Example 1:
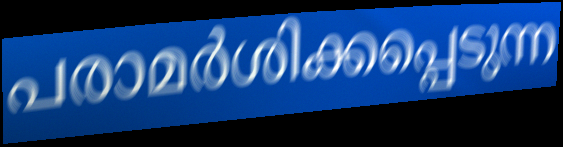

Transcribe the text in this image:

പരാമർശിക്കപ്പെടുന്ന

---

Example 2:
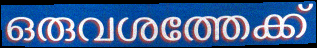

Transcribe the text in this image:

ഒരുവശത്തേക്ക്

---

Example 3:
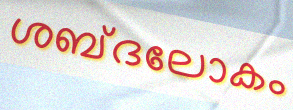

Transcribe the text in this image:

ശബ്ദലോകം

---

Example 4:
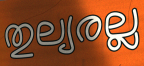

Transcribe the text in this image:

തുല്യരല്ല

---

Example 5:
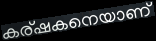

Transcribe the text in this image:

കര്ഷകനെയാണ്